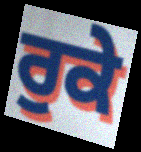
ਰੁਕੇ